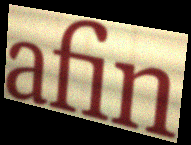
afin